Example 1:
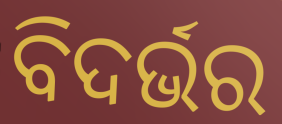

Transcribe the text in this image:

ବିଦର୍ଭର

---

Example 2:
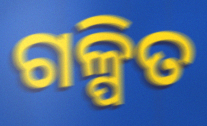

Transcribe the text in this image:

ଗଳ୍ପିତ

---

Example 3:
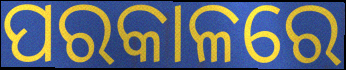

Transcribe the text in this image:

ପରକାଳରେ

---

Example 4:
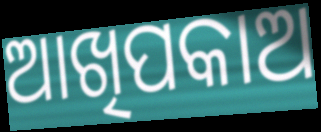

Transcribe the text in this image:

ଆଖିପକାଅ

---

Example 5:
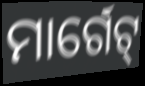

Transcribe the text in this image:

ମାର୍ଗେଟ୍